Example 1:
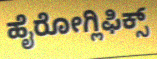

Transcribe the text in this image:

ಹೈರೋಗ್ಲಿಫಿಕ್ಸ್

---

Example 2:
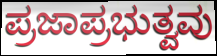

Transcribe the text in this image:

ಪ್ರಜಾಪ್ರಭುತ್ವವು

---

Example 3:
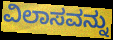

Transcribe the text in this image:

ವಿಲಾಸವನ್ನು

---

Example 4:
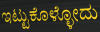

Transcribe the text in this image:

ಇಟ್ಟುಕೊಳ್ಳೋದು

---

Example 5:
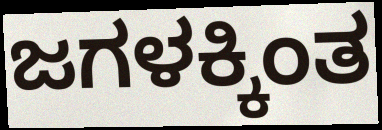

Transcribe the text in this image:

ಜಗಳಕ್ಕಿಂತ